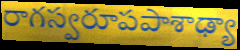
రాగస్వరూపపాశాఢ్యా